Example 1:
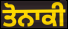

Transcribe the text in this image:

ਤੋਨਾਕੀ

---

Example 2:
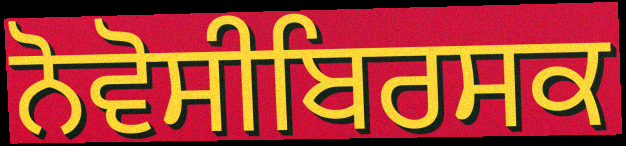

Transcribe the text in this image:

ਨੋਵੋਸੀਬਿਰਸਕ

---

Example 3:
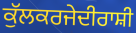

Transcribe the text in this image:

ਕੁੱਲਕਰਜੇਦੀਰਾਸ਼ੀ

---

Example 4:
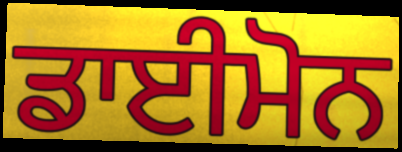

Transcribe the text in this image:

ਡਾਈਮੋਨ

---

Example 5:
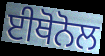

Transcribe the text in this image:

ਈਥੋਨੋਲ